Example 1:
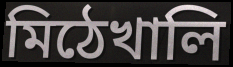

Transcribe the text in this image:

মিঠেখালি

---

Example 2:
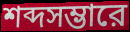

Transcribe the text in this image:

শব্দসম্ভারে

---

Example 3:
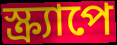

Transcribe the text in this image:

স্ক্র্যাপে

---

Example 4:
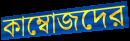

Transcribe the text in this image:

কাম্বোজদের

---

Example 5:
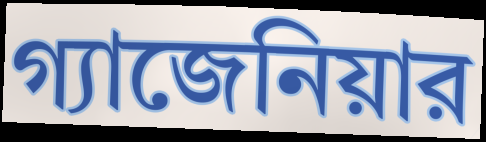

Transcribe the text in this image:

গ্যাজেনিয়ার